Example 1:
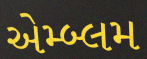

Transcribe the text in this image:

એમ્બ્લમ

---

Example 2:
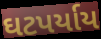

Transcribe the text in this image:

ઘટપર્યાય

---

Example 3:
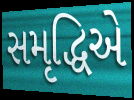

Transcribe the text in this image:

સમૃદ્ધિએ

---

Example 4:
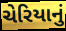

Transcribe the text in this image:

ચેરિયાનું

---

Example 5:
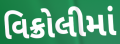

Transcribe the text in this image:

વિક્રોલીમાં